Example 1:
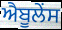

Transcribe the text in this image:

ਐਬੂਲੇਂਸ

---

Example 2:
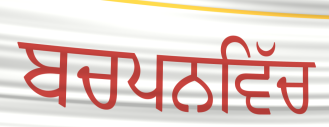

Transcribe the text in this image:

ਬਚਪਨਵਿੱਚ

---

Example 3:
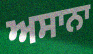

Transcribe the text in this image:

ਅਸਾਨਾ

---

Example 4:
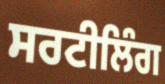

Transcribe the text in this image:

ਸਰਟੀਲਿੰਗ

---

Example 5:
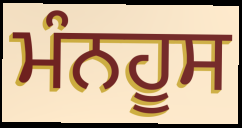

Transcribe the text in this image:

ਮੰਨਹੂਸ